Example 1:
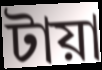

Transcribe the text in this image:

টায়া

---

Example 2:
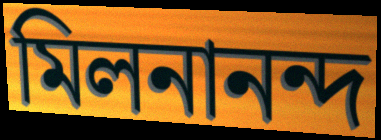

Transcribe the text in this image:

মিলনানন্দ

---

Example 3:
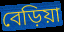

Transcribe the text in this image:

বেড়িয়া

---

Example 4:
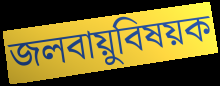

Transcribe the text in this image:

জলবায়ুবিষয়ক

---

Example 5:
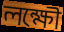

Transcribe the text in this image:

লক্ষৌ